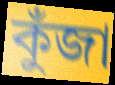
কুঁজা